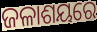
ଜଳାଶୟରେ